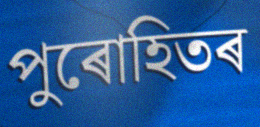
পুৰোহিতৰ